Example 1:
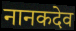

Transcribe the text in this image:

नानकदेव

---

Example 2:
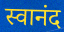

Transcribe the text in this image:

स्वानंद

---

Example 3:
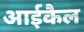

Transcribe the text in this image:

आईकैल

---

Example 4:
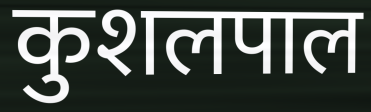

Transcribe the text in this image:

कुशलपाल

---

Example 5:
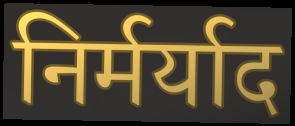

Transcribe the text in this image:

निर्मर्याद